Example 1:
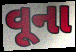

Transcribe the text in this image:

વૂના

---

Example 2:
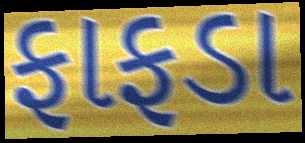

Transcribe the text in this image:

ફાફડા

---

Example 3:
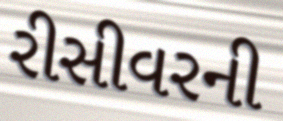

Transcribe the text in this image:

રીસીવરની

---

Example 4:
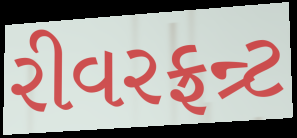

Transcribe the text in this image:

રીવરફ્રન્ર્ટ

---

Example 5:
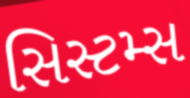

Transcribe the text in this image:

સિસ્ટમ્સ